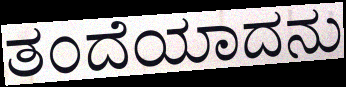
ತಂದೆಯಾದನು